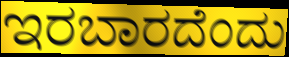
ಇರಬಾರದೆಂದು